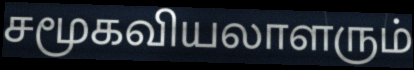
சமூகவியலாளரும்